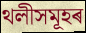
থলীসমূহৰ